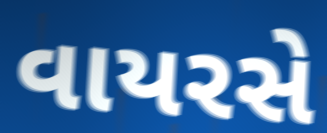
વાયરસે